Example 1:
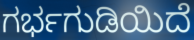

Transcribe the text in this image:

ಗರ್ಭಗುಡಿಯಿದೆ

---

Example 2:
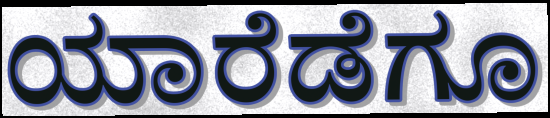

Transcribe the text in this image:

ಯಾರೆಡೆಗೂ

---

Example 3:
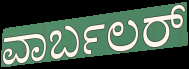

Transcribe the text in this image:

ವಾರ್ಬಲರ್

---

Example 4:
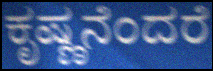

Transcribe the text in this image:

ಕೃಷ್ಣನೆಂದರೆ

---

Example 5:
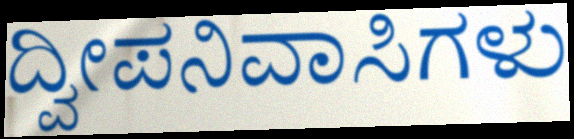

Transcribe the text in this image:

ದ್ವೀಪನಿವಾಸಿಗಳು